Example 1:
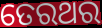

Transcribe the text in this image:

ତେରଥର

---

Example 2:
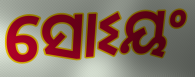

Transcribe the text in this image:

ସୋଽୟଂ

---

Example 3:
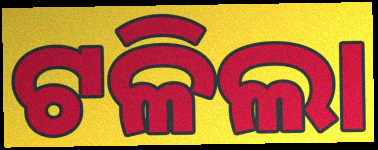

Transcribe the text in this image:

ଟଳିଲା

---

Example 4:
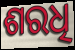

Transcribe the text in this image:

ଶରଧି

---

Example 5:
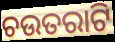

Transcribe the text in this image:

ଚଉତରାଟି